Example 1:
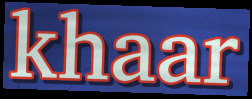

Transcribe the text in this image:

khaar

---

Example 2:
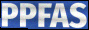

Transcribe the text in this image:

PPFAS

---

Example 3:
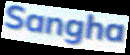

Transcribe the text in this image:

Sangha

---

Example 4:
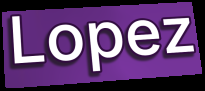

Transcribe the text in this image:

Lopez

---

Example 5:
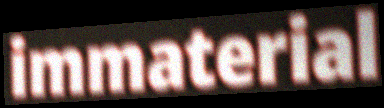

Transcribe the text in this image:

immaterial